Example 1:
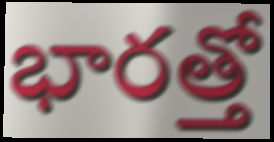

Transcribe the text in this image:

భారత్తో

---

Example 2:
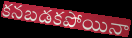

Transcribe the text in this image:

కనబడకపోయినా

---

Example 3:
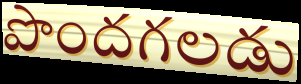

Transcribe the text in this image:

పొందగలడు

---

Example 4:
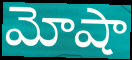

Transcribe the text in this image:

మోషా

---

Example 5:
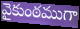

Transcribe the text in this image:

వైకుంఠముగా